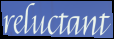
reluctant